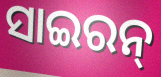
ସାଇରନ୍